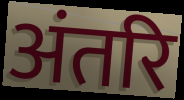
अंतरि